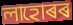
লাহোৰৰ